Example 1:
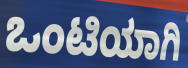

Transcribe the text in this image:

ಒಂಟಿಯಾಗಿ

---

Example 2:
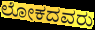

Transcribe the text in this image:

ಲೋಕದವರು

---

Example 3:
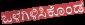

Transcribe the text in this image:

ಒಳಗಿಳಿಸಿಕೊಂಡ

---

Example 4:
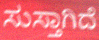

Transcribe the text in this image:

ಸುಸ್ತಾಗಿದೆ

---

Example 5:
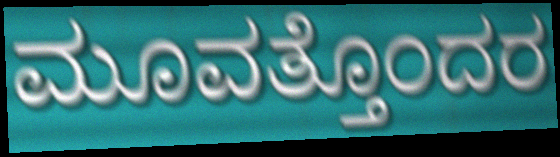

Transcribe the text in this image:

ಮೂವತ್ತೊಂದರ